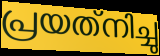
പ്രയത്‌നിച്ചു